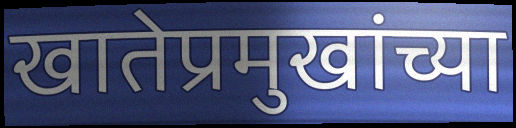
खातेप्रमुखांच्या